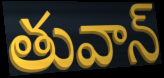
తువాన్